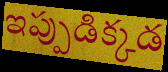
ఇప్పుడిక్కడ